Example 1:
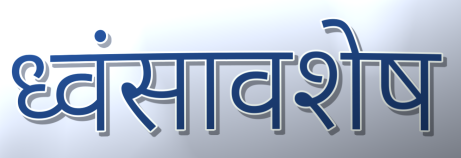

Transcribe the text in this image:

ध्वंसावशेष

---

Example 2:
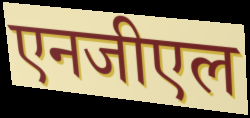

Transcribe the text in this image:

एनजीएल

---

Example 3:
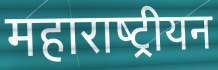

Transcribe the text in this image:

महाराष्ट्रीयन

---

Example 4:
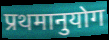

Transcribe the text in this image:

प्रथमानुयोग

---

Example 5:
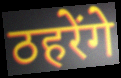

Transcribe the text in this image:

ठहरेंगे